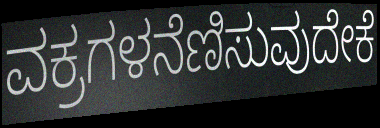
ವಕ್ರಗಳನೆಣಿಸುವುದೇಕೆ